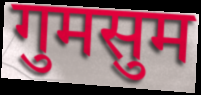
गुमसुम